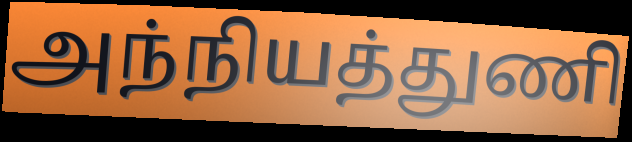
அந்நியத்துணி